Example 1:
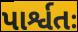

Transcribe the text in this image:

પાર્શ્વતઃ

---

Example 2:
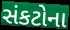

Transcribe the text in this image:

સંકટોના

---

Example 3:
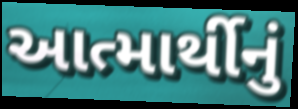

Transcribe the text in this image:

આત્માર્થીનું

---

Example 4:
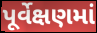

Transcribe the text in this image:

પૂર્વેક્ષણમાં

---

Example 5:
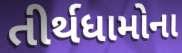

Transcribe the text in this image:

તીર્થધામોના